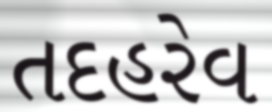
તદહરેવ